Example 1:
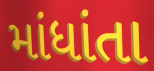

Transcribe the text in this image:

માંધાંતા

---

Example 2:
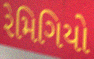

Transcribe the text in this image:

રેમિગિયો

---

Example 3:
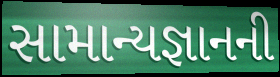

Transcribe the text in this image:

સામાન્યજ્ઞાનની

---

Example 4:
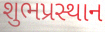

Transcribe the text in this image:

શુભપ્રસ્થાન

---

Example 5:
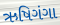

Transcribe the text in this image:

ઋષિગંગા